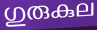
ഗുരുകുല